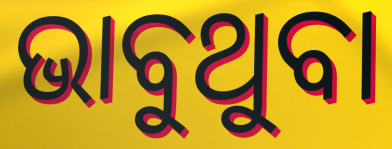
ଭାବୁଥୁବା